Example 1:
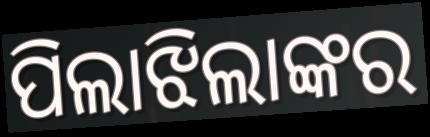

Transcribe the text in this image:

ପିଲାଝିଲାଙ୍କର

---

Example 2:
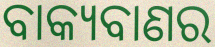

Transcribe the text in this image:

ବାକ୍ୟବାଣର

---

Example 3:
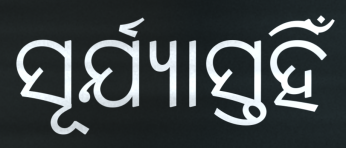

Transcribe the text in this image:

ସୂର୍ଯ୍ୟାସ୍ତହିଁ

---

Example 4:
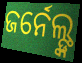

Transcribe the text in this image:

ଜର୍ନେଲ୍ଙ୍କ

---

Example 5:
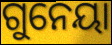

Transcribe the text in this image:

ଗୁନେୟା